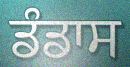
ਡੰਡਾਸ